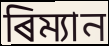
ৰিম্যান